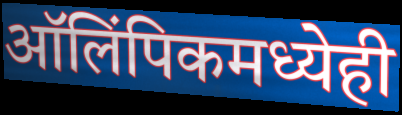
ऑलिंपिकमध्येही